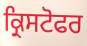
ਕ੍ਰਿਸਟੋਫਰ